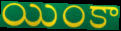
యింకా